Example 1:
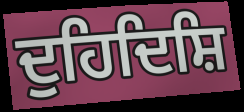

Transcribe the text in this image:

ਦੁਹਿਦਿਸ਼ਿ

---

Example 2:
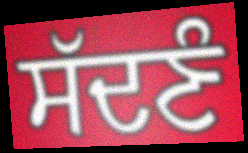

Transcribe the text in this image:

ਸੱਦਣੰ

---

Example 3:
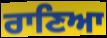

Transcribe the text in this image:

ਰਾਣਿਆ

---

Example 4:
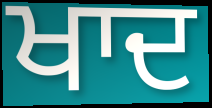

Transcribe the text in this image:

ਖਾਦ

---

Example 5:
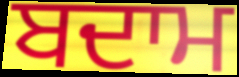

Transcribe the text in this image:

ਬਦਾਮ